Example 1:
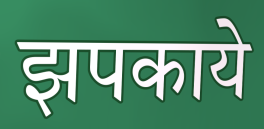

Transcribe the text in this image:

झपकाये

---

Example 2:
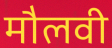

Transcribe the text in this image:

मौलवी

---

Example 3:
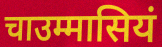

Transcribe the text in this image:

चाउम्मासियं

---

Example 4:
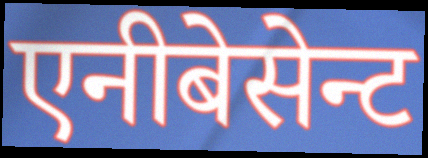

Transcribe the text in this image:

एनीबेसेन्ट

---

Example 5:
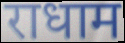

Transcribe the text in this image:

राधाम